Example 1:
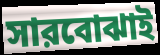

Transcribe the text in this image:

সারবোঝাই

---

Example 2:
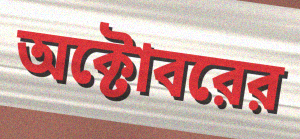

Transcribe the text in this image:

অক্টোবরের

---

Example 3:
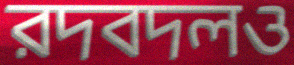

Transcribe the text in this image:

রদবদলও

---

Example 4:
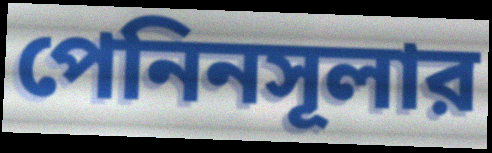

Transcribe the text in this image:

পেনিনসূলার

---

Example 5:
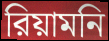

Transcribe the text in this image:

রিয়ামনি